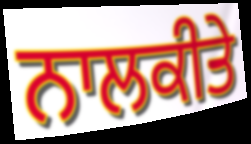
ਨਾਲਕੀਤੇ